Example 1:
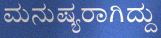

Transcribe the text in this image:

ಮನುಷ್ಯರಾಗಿದ್ದು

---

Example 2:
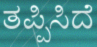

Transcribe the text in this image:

ತಪ್ಪಿಸಿದೆ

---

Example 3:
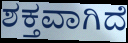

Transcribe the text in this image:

ಶಕ್ತವಾಗಿದೆ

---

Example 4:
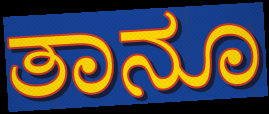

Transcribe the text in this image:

ತಾನೂ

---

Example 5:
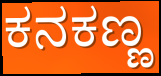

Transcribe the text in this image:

ಕನಕಣ್ಣ